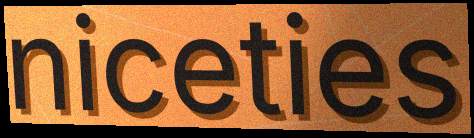
niceties